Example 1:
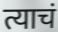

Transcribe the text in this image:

त्याचं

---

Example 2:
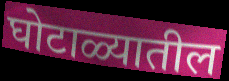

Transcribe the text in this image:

घोटाळ्यातील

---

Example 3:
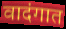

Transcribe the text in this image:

वादंगात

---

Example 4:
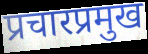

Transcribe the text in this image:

प्रचारप्रमुख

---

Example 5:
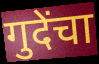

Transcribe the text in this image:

गुदेंचा